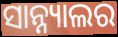
ସାନ୍ନ୍ୟାଲର